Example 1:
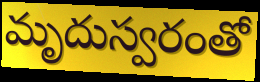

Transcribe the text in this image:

మృదుస్వరంతో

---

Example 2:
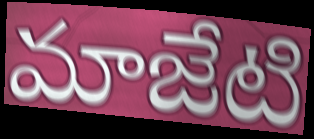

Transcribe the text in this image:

మాజేటి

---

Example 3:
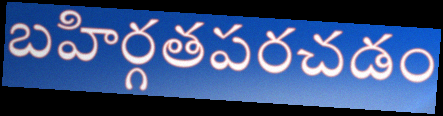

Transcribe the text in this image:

బహిర్గతపరచడం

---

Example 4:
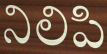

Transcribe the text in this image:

నిలిపి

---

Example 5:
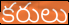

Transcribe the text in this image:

కరులు